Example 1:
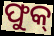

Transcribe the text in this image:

ଫୁକ୍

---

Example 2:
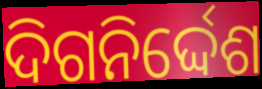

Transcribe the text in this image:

ଦିଗନିର୍ଦ୍ଦେଶ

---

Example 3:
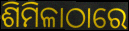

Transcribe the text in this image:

ଶିମିଳାଠାରେ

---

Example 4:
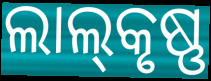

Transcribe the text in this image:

ଲାଲ୍‌କୃଷ୍ଣ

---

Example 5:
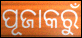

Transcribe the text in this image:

ପୂଜାକରୁଁ